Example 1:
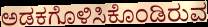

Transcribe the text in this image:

ಅಡಕಗೊಳಿಸಿಕೊಂಡಿರುವ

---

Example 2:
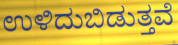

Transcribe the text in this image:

ಉಳಿದುಬಿಡುತ್ತವೆ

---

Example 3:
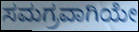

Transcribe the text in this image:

ಸಮಗ್ರವಾಗಿಯೇ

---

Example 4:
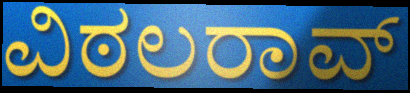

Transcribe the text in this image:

ವಿಠಲರಾವ್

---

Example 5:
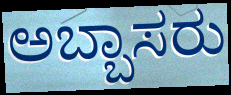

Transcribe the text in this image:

ಅಬ್ಬಾಸರು